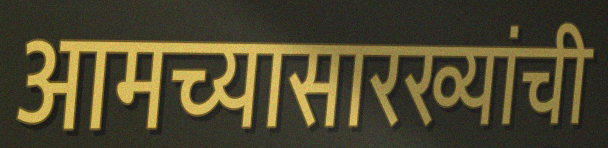
आमच्यासारख्यांची